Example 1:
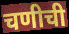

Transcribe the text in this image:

चणीची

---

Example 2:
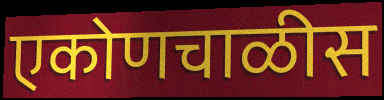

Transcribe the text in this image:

एकोणचाळीस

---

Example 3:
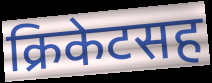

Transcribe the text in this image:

क्रिकेटसह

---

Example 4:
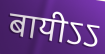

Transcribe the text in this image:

बायीऽऽ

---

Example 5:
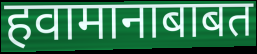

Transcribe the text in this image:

हवामानाबाबत